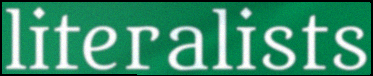
literalists